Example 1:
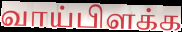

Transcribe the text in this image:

வாய்பிளக்க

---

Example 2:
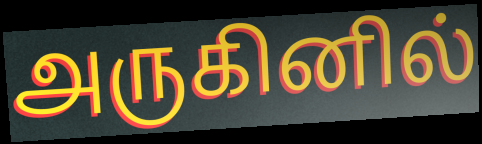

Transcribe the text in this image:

அருகினில்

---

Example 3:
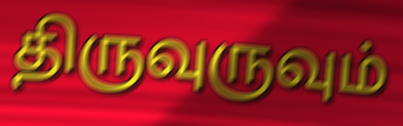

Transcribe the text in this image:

திருவுருவும்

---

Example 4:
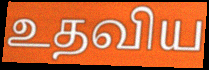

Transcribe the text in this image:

உதவிய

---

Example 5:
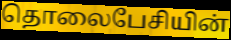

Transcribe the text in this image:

தொலைபேசியின்